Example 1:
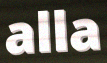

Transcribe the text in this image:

alla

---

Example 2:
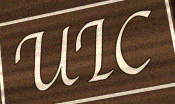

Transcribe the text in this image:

UIC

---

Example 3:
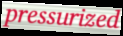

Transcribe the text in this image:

pressurized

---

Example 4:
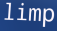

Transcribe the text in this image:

limp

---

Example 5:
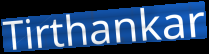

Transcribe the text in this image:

Tirthankar